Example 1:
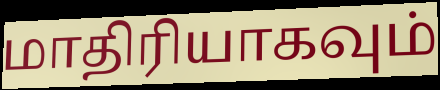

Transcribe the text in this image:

மாதிரியாகவும்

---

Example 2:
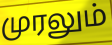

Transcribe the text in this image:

முரலும்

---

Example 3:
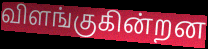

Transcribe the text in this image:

விளங்குகின்றன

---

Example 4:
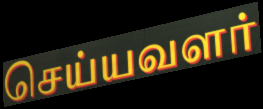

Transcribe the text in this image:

செய்யவளர்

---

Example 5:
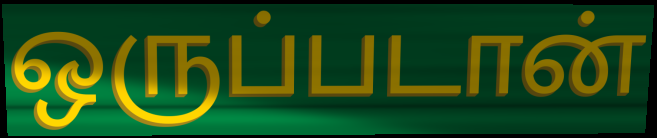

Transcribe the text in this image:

ஒருப்படான்